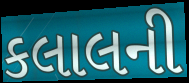
કલાલની